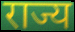
राज्य